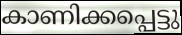
കാണിക്കപ്പെട്ടു